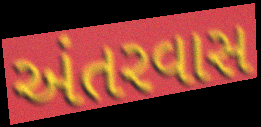
અંતરવાસ